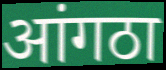
आंगठा